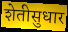
शेतीसुधार